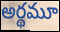
అర్థమూ